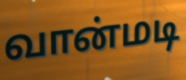
வான்மடி